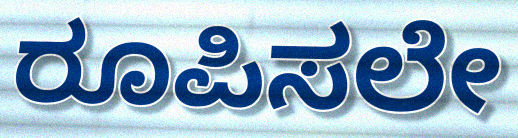
ರೂಪಿಸಲೇ